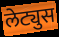
लेट्युस